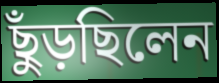
ছুঁড়ছিলেন